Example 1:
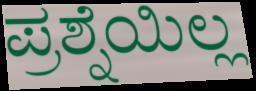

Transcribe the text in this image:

ಪ್ರಶ್ನೆಯಿಲ್ಲ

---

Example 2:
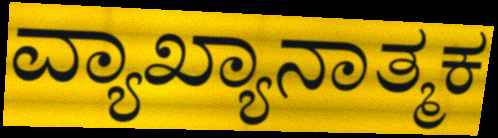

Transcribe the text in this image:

ವ್ಯಾಖ್ಯಾನಾತ್ಮಕ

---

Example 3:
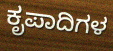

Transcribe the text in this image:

ಕೃಪಾದಿಗಳ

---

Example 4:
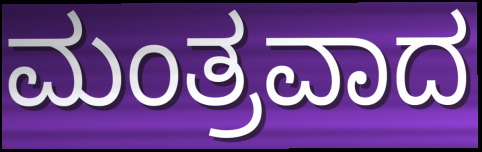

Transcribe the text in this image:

ಮಂತ್ರವಾದ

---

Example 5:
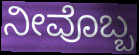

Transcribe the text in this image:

ನೀವೊಬ್ಬ